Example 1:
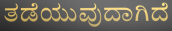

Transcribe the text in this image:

ತಡೆಯುವುದಾಗಿದೆ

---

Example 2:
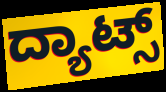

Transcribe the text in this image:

ದ್ಯಾಟ್ಸ್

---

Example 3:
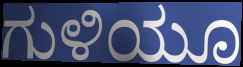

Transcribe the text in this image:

ಗುಳಿಯೂ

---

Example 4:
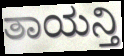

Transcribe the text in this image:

ತಾಯನ್ತಿ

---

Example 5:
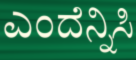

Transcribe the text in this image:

ಎಂದೆನ್ನಿಸಿ